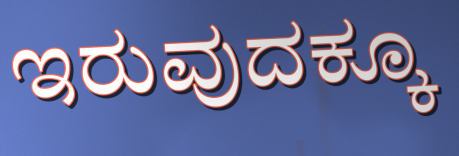
ಇರುವುದಕ್ಕೂ